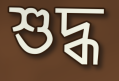
শুদ্ধ